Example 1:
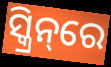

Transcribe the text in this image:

ସ୍କ୍ରିନ୍‌ରେ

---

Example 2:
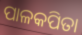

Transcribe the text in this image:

ପାଳକପିତା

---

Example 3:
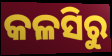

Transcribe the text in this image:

କଳସିରୁ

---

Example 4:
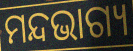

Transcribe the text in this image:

ମନ୍ଦଭାଗ୍ୟ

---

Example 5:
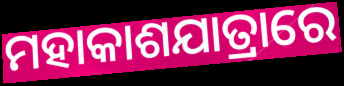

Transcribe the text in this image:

ମହାକାଶଯାତ୍ରାରେ